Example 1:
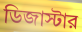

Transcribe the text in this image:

ডিজাস্টার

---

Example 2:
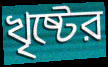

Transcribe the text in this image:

খৃষ্টের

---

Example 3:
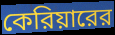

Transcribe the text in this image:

কেরিয়ারের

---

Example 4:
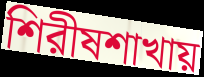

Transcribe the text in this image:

শিরীষশাখায়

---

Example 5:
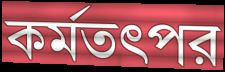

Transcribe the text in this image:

কর্মতৎপর